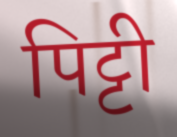
पिट्टी